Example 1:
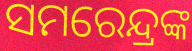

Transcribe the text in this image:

ସମରେନ୍ଦ୍ରଙ୍କ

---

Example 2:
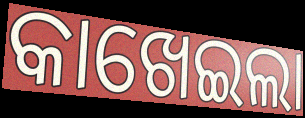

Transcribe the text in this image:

କାଖେଇଲା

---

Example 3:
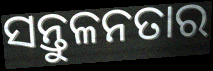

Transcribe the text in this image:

ସନ୍ତୁଳନତାର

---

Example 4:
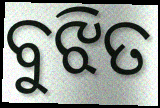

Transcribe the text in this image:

ବୁଝିତ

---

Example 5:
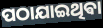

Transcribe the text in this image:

ପଠାଯାଇଥିଵା